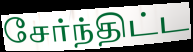
சேர்ந்திட்ட